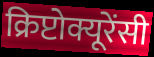
क्रिप्टोक्यूरेंसी